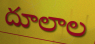
దూలాల